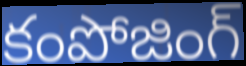
కంపోజింగ్